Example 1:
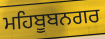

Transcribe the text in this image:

ਮਹਿਬੂਬਨਗਰ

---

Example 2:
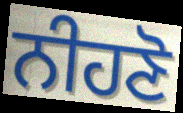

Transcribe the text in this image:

ਨੀਹਣੋ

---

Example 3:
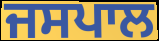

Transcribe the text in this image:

ਜਸਪਾਲ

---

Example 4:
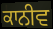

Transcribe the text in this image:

ਕਾਨੀਵ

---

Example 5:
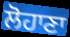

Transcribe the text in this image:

ਲੋਹਾਣਾ